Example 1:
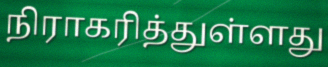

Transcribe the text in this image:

நிராகரித்துள்ளது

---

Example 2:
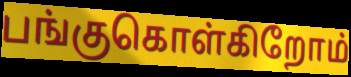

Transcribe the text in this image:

பங்குகொள்கிறோம்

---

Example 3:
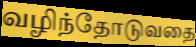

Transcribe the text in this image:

வழிந்தோடுவதை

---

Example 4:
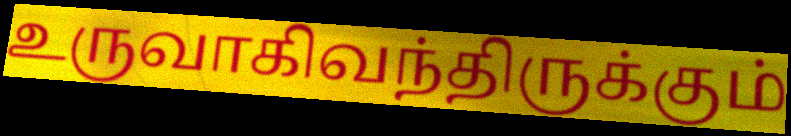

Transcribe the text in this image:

உருவாகிவந்திருக்கும்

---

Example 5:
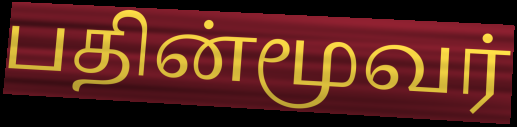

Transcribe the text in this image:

பதின்மூவர்